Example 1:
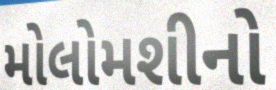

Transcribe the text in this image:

મોલોમશીનો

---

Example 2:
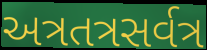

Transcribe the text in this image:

અત્રતત્રસર્વત્ર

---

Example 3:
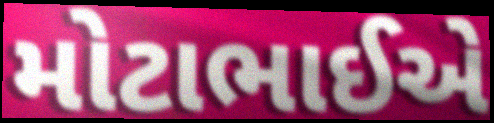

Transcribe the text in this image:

મોટાભાઈએ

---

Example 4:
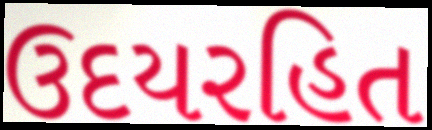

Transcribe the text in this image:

ઉદયરહિત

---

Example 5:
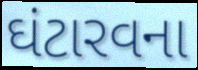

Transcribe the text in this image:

ઘંટારવના